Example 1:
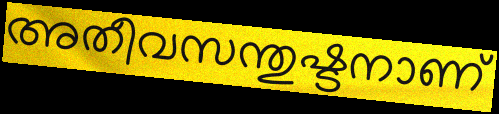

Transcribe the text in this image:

അതീവസന്തുഷ്ടനാണ്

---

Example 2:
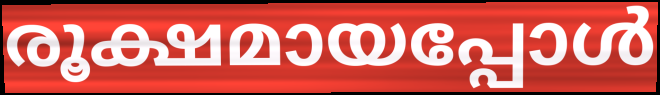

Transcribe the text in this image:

രൂക്ഷമായപ്പോൾ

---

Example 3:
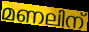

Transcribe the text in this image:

മണലിന്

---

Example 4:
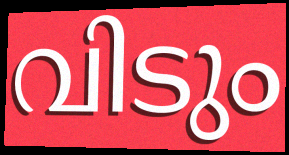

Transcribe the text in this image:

വിടും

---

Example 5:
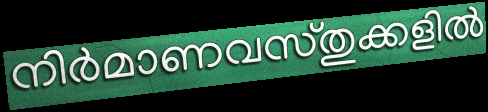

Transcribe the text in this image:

നിർമാണവസ്തുക്കളിൽ